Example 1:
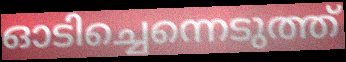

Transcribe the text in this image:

ഓടിച്ചെന്നെടുത്ത്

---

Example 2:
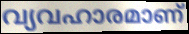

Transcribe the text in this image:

വ്യവഹാരമാണ്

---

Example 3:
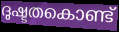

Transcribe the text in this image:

ദുഷ്ടതകൊണ്ട്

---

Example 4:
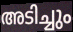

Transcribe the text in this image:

അടിച്ചും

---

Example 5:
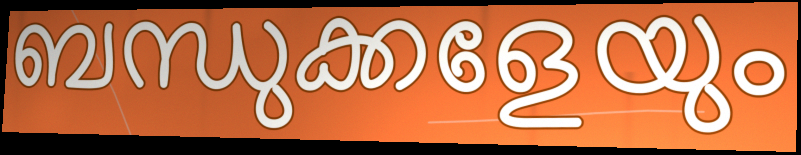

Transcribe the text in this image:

ബന്ധുക്കളേയും